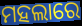
ମହଲାରେ